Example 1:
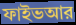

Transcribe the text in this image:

ফাইভআর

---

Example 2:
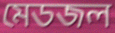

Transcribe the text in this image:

মেডজল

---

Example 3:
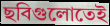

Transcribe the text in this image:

ছবিগুলোতেই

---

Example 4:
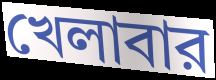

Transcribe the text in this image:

খেলাবার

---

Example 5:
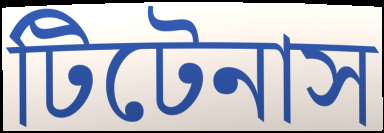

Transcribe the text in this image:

টিটেনাস